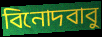
বিনোদবাবু